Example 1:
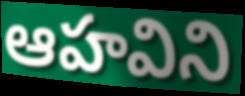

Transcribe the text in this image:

ఆహవిని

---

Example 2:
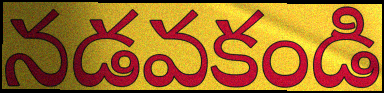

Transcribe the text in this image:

నడవకండి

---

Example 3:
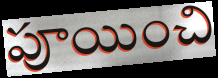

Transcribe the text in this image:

పూయించి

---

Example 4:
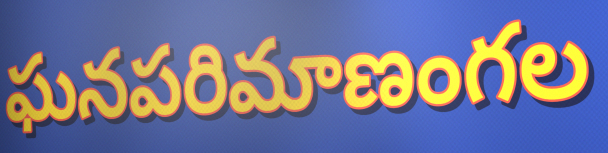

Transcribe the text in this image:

ఘనపరిమాణంగల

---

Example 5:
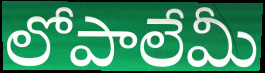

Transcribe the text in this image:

లోపాలేమీ